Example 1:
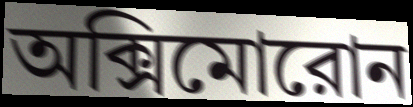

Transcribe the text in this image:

অক্সিমোরোন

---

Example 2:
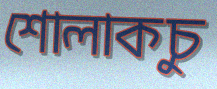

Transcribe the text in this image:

শোলাকচু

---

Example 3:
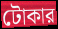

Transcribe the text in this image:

টোকার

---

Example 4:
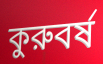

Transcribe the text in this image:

কুরুবর্ষ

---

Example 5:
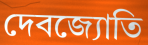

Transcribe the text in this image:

দেবজ্যোতি